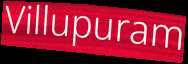
Villupuram